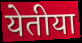
येतीया